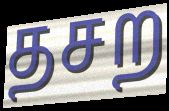
தசற